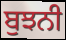
ਬੁਝਨੀ